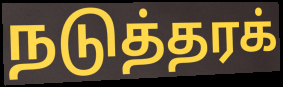
நடுத்தரக்